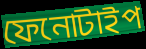
ফেনোটাইপ